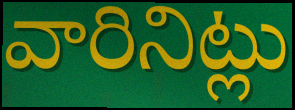
వారినిట్లు